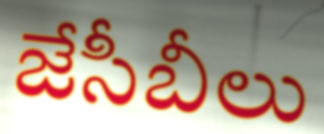
జేసీబీలు